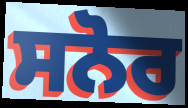
ਸਨੋਰ